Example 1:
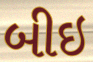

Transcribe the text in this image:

બીઇ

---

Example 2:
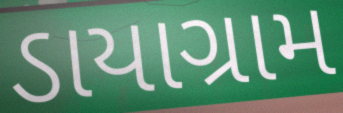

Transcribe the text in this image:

ડાયાગ્રામ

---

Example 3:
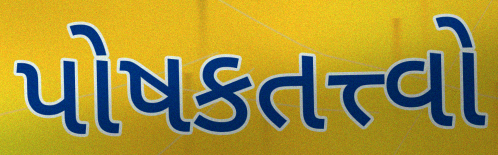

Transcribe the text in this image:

પોષકતત્ત્વો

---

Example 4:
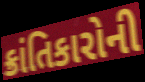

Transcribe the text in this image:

ક્રાંતિકારોની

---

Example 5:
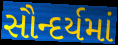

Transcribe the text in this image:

સૌન્દર્યમાં